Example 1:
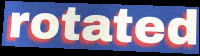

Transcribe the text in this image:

rotated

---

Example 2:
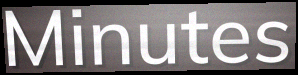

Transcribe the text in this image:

Minutes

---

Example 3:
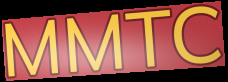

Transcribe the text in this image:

MMTC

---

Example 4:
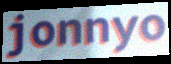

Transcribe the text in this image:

jonnyo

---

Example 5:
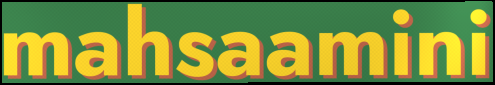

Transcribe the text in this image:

mahsaamini